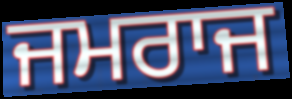
ਜਮਰਾਜ